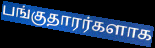
பங்குதாரர்களாக